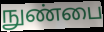
நுண்பை